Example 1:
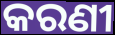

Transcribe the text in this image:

କରଣୀ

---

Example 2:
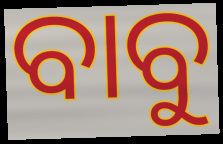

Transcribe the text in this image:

ବାବୁ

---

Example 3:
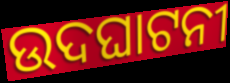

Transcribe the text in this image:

ଉଦଘାଟନୀ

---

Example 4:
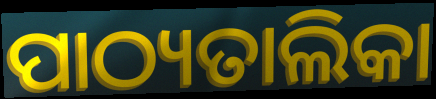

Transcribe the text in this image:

ପାଠ୍ୟତାଲିକା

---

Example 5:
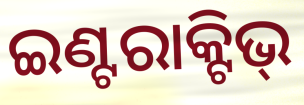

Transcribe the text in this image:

ଇଣ୍ଟରାକ୍ଟିଭ୍